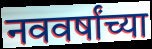
नववर्षांच्या